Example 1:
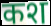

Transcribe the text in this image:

कश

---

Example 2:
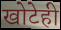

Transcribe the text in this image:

खोटेही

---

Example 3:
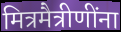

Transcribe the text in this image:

मित्रमैत्रीणींना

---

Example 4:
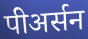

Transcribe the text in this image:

पीअर्सन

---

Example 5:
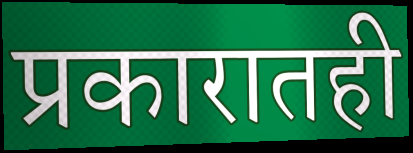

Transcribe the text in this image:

प्रकारातही